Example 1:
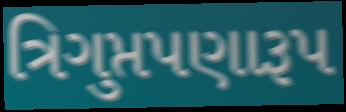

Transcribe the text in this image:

ત્રિગુપ્તપણારૂપ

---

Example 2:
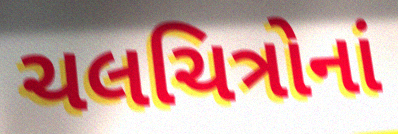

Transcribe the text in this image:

ચલચિત્રોનાં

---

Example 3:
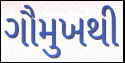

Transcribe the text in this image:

ગૌમુખથી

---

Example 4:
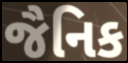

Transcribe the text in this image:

જૈનિક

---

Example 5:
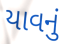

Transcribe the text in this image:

યાવનું